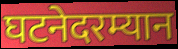
घटनेदरम्यान